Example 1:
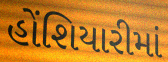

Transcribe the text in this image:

હોંશિયારીમાં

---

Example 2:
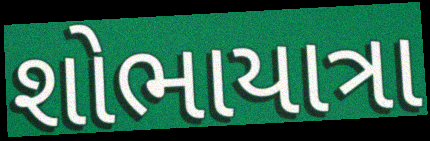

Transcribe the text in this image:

શોભાયાત્રા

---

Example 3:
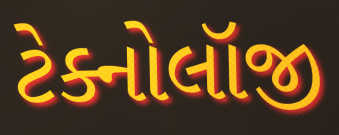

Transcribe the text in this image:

ટેક્નોલૉજી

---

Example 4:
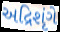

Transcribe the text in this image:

અદ્રિશૃંગે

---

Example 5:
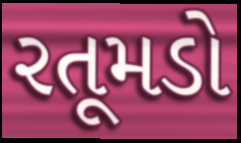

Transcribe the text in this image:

રતૂમડો